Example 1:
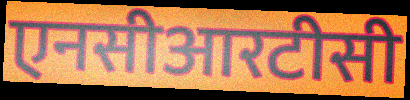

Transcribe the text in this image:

एनसीआरटीसी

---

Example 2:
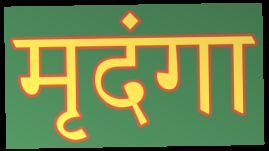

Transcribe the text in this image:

मृदंगा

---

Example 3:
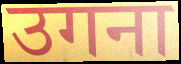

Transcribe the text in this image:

उगना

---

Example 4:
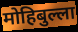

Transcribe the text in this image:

मोहिबुल्ला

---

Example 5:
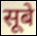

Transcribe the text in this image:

सूबे